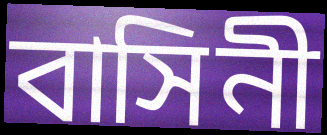
বাসিনী